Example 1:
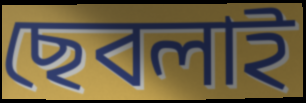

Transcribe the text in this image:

ছেবলাই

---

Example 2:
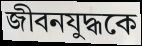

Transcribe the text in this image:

জীবনযুদ্ধকে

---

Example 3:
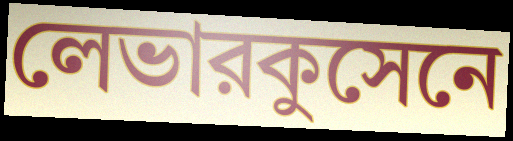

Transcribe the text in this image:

লেভারকুসেনে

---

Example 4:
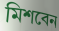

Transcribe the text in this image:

মিশবেন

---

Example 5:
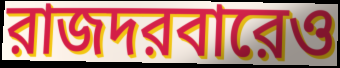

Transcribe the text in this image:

রাজদরবারেও